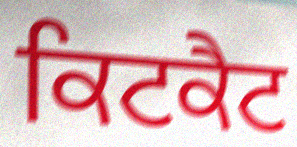
ਕਿਟਕੈਟ